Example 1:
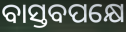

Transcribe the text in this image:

ବାସ୍ତବପକ୍ଷେ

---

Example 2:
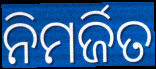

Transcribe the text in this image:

ନିମର୍ଜିତ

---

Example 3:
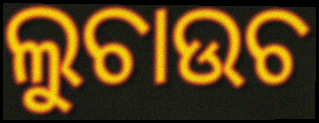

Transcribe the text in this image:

ଲୁଚାଉଚ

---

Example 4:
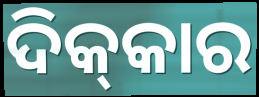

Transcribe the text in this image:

ଦିକ୍‌କାର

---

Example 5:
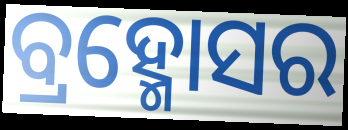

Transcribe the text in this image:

ବ୍ରହ୍ମୋସର